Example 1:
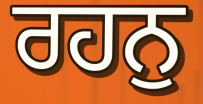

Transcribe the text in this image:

ਰਹਨੁ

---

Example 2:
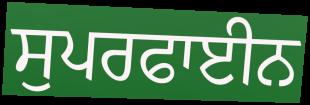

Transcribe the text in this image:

ਸੁਪਰਫਾਈਨ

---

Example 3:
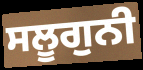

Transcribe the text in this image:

ਸਲੂਗੁਨੀ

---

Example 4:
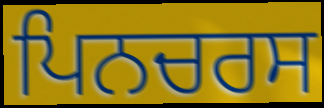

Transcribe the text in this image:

ਪਿਨਚਰਸ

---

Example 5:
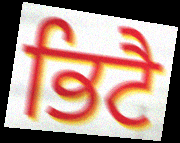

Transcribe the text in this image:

ਭਿਟੈ